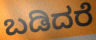
ಬಡಿದರೆ